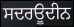
ਸਦਰਊਦੀਨ